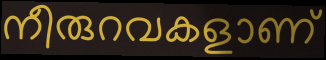
നീരുറവകളാണ്